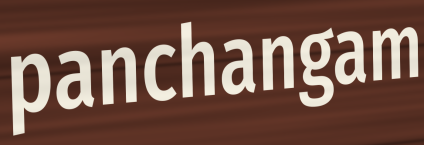
panchangam